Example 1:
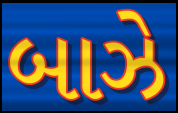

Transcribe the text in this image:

બાઝે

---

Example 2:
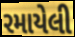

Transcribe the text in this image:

રમાયેલી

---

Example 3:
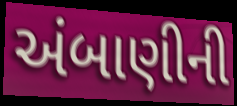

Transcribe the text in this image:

અંબાણીની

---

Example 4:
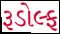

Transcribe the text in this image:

રૂડોલ્ફ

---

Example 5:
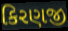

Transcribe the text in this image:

કિરણજી